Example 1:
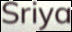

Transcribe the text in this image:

Sriya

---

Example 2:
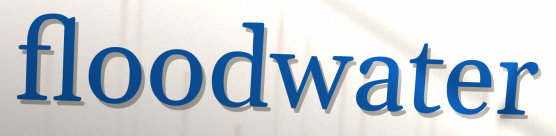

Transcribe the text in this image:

floodwater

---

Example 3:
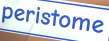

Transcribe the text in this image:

peristome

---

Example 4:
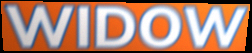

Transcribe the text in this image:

WIDOW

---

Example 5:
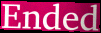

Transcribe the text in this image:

Ended